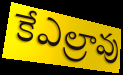
కేఎల్రావు